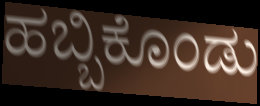
ಹಬ್ಬಿಕೊಂಡು